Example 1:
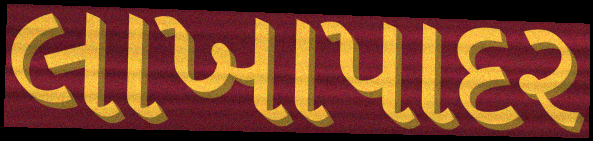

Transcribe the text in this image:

લાખાપાદર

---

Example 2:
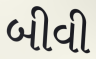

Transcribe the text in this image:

બીવી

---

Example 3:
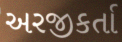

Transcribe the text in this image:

અરજીકર્તા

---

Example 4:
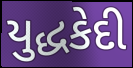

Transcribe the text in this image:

યુદ્ધકેદી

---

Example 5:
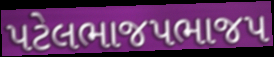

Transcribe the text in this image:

પટેલભાજપભાજપ